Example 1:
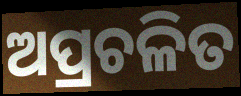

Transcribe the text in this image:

ଅପ୍ରଚଳିତ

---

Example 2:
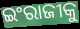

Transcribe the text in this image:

ଇଂରାଜୀକୁ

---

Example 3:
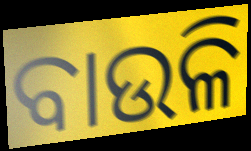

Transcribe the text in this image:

ବାଉଳି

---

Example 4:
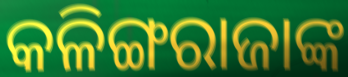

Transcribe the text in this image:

କଳିଙ୍ଗରାଜାଙ୍କ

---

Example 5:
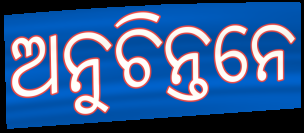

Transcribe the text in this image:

ଅନୁଚିନ୍ତନେ